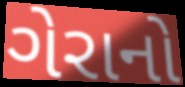
ગેરાનો